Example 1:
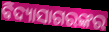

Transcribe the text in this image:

ବିଦ୍ୟାସାଗରଙ୍କର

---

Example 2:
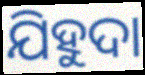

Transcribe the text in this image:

ଯିହୁଦା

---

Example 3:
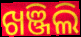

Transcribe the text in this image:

ଖଞ୍ଜିଲି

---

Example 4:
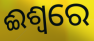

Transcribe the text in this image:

ଈଶ୍ଵରେ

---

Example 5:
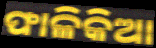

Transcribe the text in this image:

ଫାଳିକିଆ